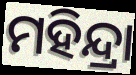
ମହିନ୍ଦ୍ରା